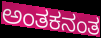
ಅಂತಕನಂತ